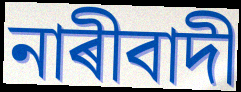
নাৰীবাদী